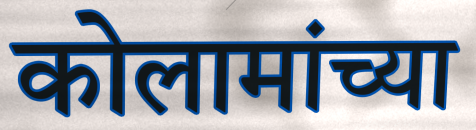
कोलामांच्या